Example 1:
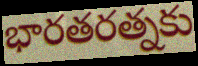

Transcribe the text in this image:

భారతరత్నకు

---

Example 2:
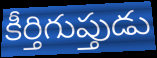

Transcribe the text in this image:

కీర్తిగుప్తుడు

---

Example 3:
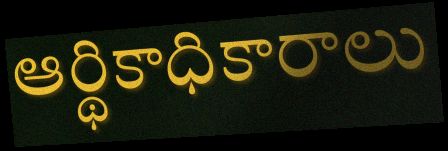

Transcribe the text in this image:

ఆర్థికాధికారాలు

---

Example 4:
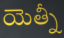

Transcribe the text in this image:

యెత్నీ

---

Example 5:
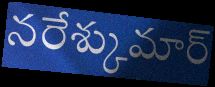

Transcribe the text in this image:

నరేశ్కుమార్